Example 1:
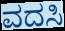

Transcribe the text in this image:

ವದಸಿ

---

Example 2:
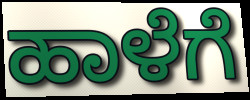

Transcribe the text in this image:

ಹಾಳೆಗೆ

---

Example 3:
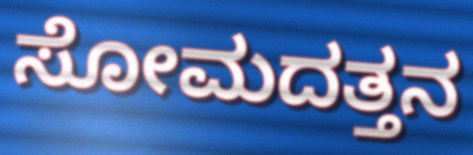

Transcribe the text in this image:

ಸೋಮದತ್ತನ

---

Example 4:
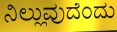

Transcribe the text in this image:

ನಿಲ್ಲುವುದೆಂದು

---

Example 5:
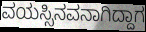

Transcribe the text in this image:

ವಯಸ್ಸಿನವನಾಗಿದ್ದಾಗ